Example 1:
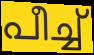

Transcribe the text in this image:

പീച്ച്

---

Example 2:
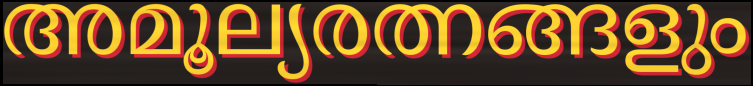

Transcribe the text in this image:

അമൂല്യരത്നങ്ങളും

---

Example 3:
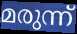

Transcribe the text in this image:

മരുന്ന്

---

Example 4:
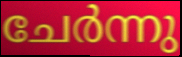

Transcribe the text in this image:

ചേർന്നു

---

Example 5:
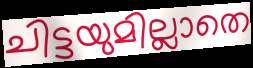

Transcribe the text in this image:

ചിട്ടയുമില്ലാതെ